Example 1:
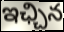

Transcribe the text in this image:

ఇఛ్చిన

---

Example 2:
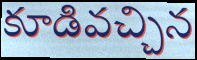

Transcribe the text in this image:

కూడివచ్చిన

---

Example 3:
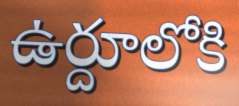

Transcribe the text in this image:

ఉర్దూలోకి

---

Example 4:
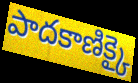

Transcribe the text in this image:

పాదకాణిక్కై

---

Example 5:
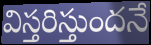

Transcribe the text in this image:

విస్తరిస్తుందనే